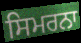
ਸਿਮਰਨਾ